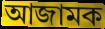
আজামক